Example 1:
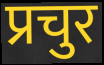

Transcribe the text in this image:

प्रचुर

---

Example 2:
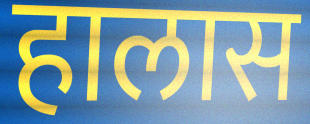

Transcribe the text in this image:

हालास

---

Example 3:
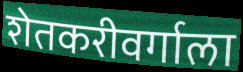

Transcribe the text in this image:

शेतकरीवर्गाला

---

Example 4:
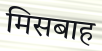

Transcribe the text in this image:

मिसबाह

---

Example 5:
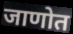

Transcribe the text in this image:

जाणोत